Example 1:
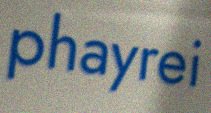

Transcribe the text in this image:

phayrei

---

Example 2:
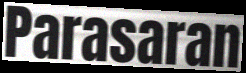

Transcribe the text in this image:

Parasaran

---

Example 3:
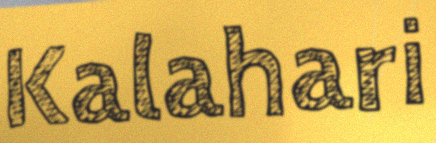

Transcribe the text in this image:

Kalahari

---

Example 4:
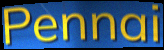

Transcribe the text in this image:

Pennai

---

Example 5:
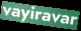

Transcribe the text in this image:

vayiravar